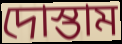
দোস্তাম